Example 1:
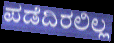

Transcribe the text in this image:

ಪಡೆದಿರಲಿಲ್ಲ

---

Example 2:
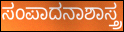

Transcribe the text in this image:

ಸಂಪಾದನಾಶಾಸ್ತ್ರ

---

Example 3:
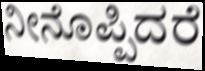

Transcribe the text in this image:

ನೀನೊಪ್ಪಿದರೆ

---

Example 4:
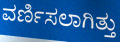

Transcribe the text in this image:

ವರ್ಣಿಸಲಾಗಿತ್ತು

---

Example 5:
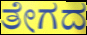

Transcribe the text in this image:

ತೇಗದ